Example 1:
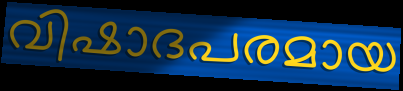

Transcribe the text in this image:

വിഷാദപരമായ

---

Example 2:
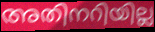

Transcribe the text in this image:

അതിനറിയില്ല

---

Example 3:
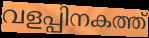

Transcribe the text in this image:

വളപ്പിനകത്ത്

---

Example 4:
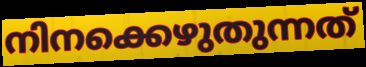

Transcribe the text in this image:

നിനക്കെഴുതുന്നത്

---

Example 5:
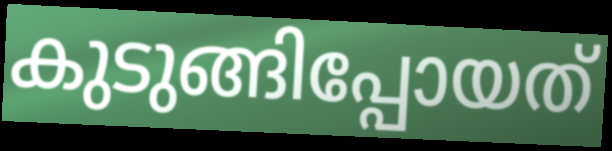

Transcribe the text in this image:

കുടുങ്ങിപ്പോയത്